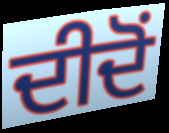
ਦੀਦੋਂ